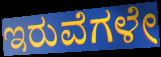
ಇರುವೆಗಳೇ